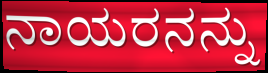
ನಾಯರನನ್ನು